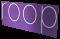
roop